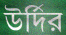
উর্দির